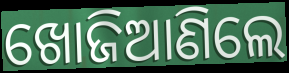
ଖୋଜିଆଣିଲେ